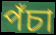
পঁচা